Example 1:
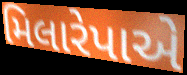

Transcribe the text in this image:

મિલારેપાએ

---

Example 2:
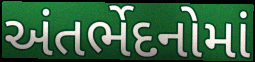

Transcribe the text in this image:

અંતર્ભેદનોમાં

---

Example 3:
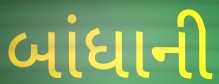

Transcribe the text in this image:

બાંધાની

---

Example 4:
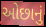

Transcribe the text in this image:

ઓછાનું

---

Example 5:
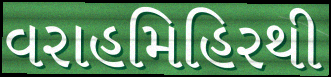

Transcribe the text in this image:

વરાહમિહિરથી